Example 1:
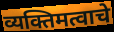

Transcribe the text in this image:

व्यक्तिमत्वाचे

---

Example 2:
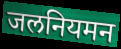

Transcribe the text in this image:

जलनियमन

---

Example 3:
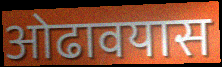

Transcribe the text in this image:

ओढावयास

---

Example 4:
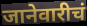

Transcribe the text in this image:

जानेवारीचं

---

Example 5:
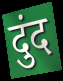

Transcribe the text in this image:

दुंद